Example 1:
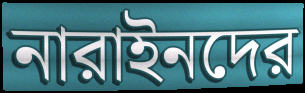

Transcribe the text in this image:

নারাইনদের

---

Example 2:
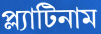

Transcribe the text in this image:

প্ল্যাটিনাম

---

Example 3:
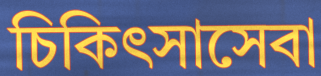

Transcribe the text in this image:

চিকিৎসাসেবা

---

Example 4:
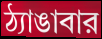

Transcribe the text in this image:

ঠ্যাঙাবার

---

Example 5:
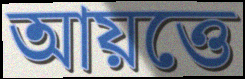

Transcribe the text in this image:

আয়ত্তে